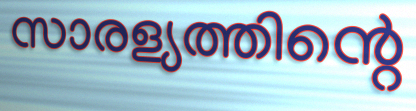
സാരള്യത്തിന്റെ